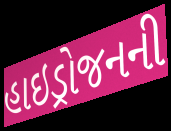
હાઇડ્રોજનની